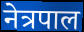
नेत्रपाल